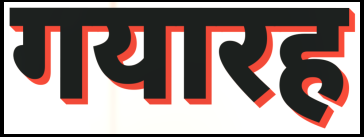
गयारह